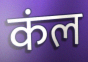
कंल